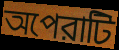
অপেরাটি